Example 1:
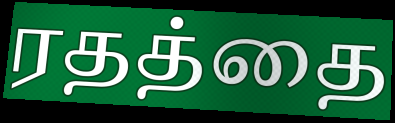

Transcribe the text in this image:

ரதத்தை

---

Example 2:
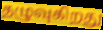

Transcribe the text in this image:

தழுவுகிறது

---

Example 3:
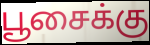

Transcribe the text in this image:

பூசைக்கு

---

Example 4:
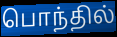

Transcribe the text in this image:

பொந்தில்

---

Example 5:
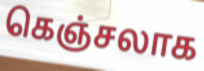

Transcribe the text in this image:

கெஞ்சலாக